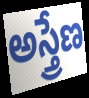
అస్త్రేణ